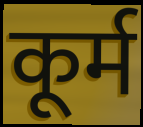
कूर्म